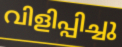
വിളിപ്പിച്ചു